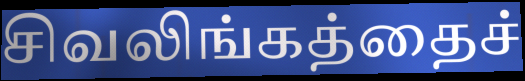
சிவலிங்கத்தைச்